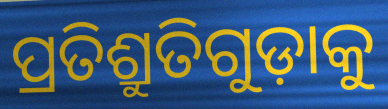
ପ୍ରତିଶ୍ରୁତିଗୁଡ଼ାକୁ